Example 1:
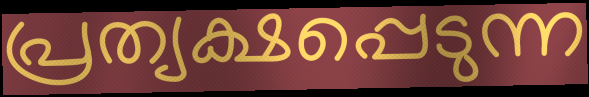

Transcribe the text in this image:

പ്രത്യക്ഷപ്പെടുന്ന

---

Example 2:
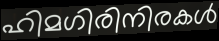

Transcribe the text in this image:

ഹിമഗിരിനിരകൾ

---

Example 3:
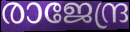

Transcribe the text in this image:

രാജേന്ദ്ര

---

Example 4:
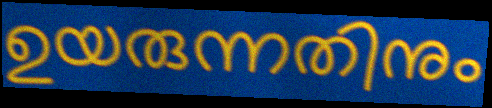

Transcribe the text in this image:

ഉയരുന്നതിനും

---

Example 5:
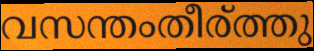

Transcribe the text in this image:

വസന്തംതീര്ത്തു